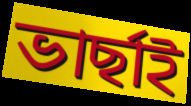
ভাৰ্ছাই